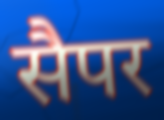
सैपर